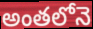
అంతలోనె